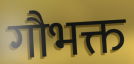
गौभक्त